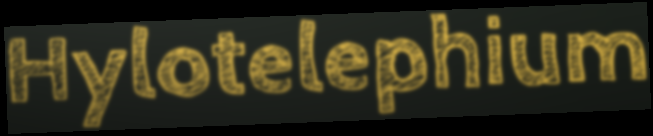
Hylotelephium